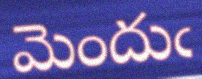
మెందుఁ